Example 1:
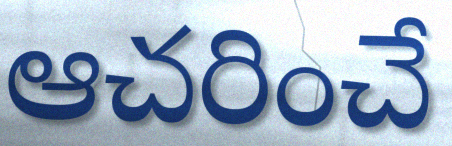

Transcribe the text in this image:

ఆచరించే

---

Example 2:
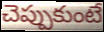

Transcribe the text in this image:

చెప్పుకుంటే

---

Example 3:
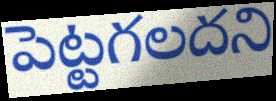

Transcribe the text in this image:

పెట్టగలదని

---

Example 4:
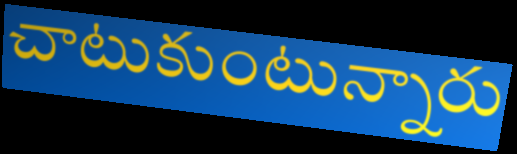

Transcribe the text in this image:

చాటుకుంటున్నారు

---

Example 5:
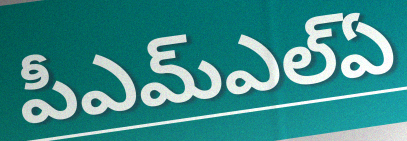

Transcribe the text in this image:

పీఎమ్ఎల్ఏ